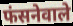
फंसनेवाले